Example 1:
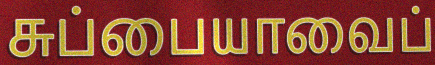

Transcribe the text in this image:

சுப்பையாவைப்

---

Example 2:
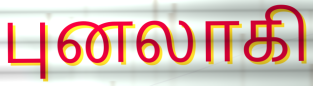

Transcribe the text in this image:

புனலாகி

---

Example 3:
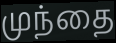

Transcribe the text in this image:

முந்தை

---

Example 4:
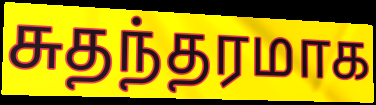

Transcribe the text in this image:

சுதந்தரமாக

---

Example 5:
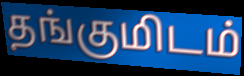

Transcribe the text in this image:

தங்குமிடம்